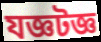
যজ্ঞটজ্ঞ